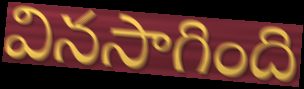
వినసాగింది